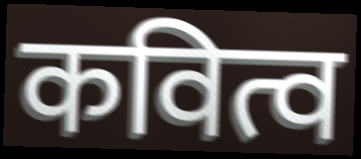
कवित्व